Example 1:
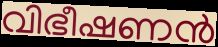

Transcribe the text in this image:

വിഭീഷണൻ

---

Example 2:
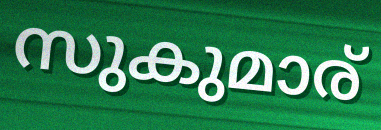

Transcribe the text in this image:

സുകുമാര്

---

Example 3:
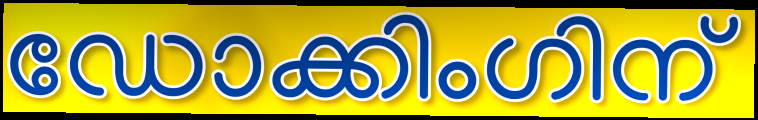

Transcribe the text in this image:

ഡോക്കിംഗിന്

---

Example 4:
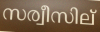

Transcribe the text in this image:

സര്വീസില്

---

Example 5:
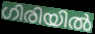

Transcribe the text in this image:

ഗിരിയിൽ